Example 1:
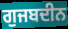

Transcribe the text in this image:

ਗੁਜਬਦੀਨ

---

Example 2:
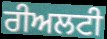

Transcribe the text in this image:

ਰੀਅਲਟੀ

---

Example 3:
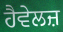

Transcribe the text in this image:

ਹੈਵੇਲਜ਼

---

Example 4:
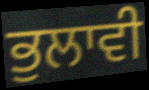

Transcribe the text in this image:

ਭੁਲਾਵੀ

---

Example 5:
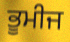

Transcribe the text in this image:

ਭੂਮੀਜ